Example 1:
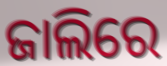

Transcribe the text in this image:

ଜାଲିରେ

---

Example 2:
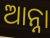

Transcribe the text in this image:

ଆନ୍ନା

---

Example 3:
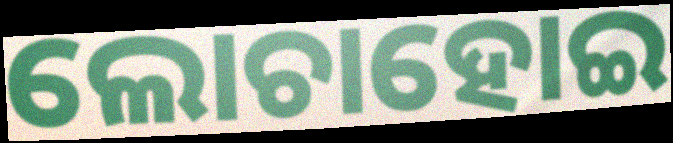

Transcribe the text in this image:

ଲୋଚାହୋଇ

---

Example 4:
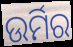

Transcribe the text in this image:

ଉର୍ମିର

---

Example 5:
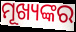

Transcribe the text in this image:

ମୂଖ୍ୟଙ୍କର